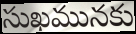
సుఖమునకు